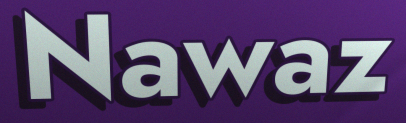
Nawaz